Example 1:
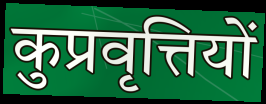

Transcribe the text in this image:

कुप्रवृत्तियों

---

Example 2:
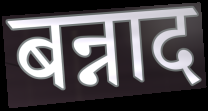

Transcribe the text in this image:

बन्नाद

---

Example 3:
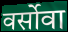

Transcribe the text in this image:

वर्सोवा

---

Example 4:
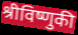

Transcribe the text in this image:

श्रीविष्णुकी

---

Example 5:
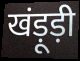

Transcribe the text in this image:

खंड़ूड़ी